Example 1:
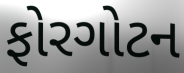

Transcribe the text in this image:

ફોરગોટન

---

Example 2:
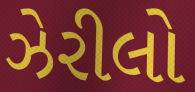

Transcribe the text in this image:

ઝેરીલો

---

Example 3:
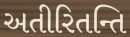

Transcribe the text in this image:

અતીરિતન્તિ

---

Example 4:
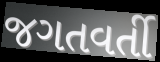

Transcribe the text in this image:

જગતવર્તી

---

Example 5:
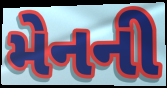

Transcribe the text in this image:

મેનની